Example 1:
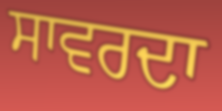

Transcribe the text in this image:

ਸਾਵਰਦਾ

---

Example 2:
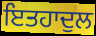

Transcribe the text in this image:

ਇਤਹਾਦੁਲ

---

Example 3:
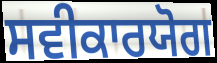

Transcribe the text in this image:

ਸਵੀਕਾਰਯੋਗ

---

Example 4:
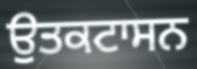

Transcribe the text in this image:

ਉਤਕਟਾਸਨ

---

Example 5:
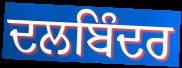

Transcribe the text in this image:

ਦਲਬਿੰਦਰ